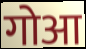
गोआ